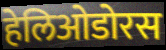
हेलिओडोरस